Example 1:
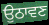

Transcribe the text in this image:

ਉਠਾਵਣ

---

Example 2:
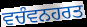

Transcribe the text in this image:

ਵਚੰਵਨਹਰਤ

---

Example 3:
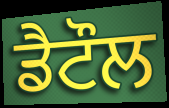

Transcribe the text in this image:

ਡੈਟੌਲ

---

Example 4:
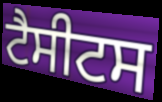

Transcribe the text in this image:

ਟੈਸੀਟਸ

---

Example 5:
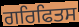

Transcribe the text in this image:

ਗਰਿਫਿਤਸ